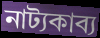
নাট্যকাব্য